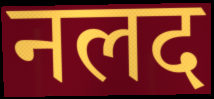
नलद